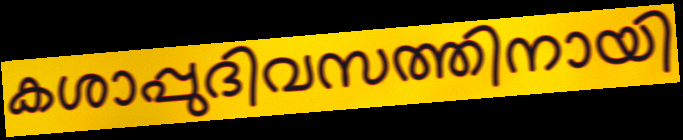
കശാപ്പുദിവസത്തിനായി